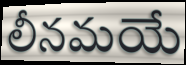
లీనమయే